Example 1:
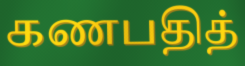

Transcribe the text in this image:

கணபதித்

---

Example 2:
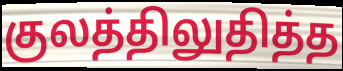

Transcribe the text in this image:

குலத்திலுதித்த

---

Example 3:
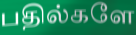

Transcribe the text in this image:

பதில்களே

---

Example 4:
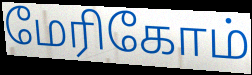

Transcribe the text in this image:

மேரிகோம்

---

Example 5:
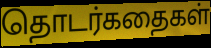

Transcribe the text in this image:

தொடர்கதைகள்